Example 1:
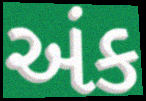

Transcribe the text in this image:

અંક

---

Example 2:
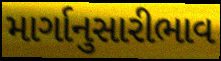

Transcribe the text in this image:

માર્ગાનુસારીભાવ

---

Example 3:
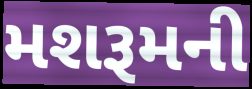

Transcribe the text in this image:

મશરૂમની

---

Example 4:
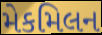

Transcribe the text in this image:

મેકમિલન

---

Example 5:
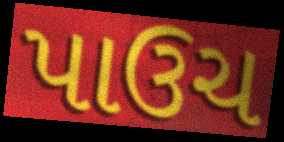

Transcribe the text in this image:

પાઉચ